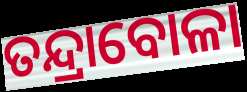
ତନ୍ଦ୍ରାବୋଳା